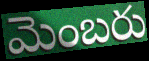
మెంబరు